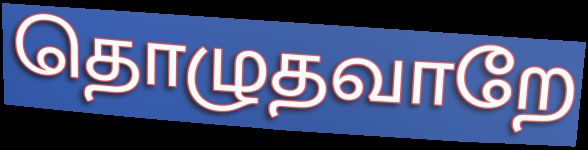
தொழுதவாறே